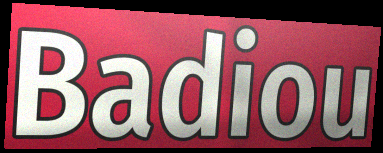
Badiou